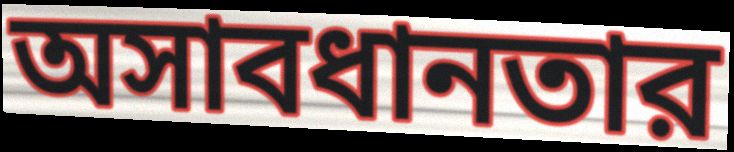
অসাবধানতার